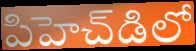
పిహెచ్‌డిలో